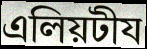
এলিয়টীয